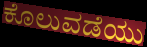
ಕೊಲುವಡೆಯು